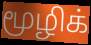
மூழிக்